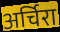
अर्चिरा